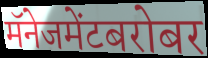
मॅनेजमेंटबरोबर